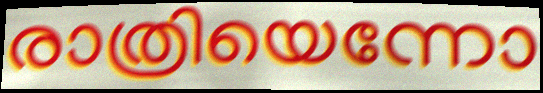
രാത്രിയെന്നോ